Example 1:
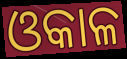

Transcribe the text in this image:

ଓକାଳ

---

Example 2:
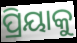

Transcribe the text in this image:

ପ୍ରିୟାକୁ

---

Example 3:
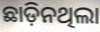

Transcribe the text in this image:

ଛାଡ଼ିନଥିଲା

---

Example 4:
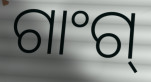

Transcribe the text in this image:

ଗାଂଗ୍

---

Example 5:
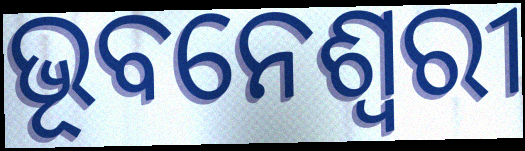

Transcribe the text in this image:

ଭୂବନେଶ୍ୱରୀ